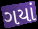
ગયાં